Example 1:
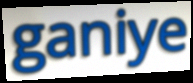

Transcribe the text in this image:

ganiye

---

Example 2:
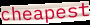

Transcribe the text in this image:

cheapest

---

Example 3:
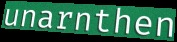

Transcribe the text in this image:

unarnthen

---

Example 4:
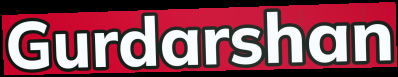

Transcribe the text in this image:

Gurdarshan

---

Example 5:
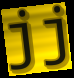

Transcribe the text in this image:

jj